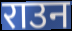
राउन